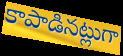
కాపాడినట్లుగా